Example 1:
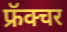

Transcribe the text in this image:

फ्रॅक्चर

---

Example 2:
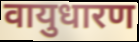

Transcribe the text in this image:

वायुधारण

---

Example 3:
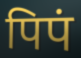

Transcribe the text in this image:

पिपं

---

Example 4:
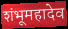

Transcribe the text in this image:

शंभूमहादेव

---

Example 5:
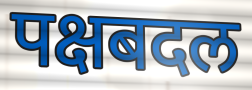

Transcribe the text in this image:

पक्षबदल